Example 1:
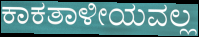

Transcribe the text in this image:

ಕಾಕತಾಳೀಯವಲ್ಲ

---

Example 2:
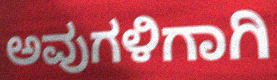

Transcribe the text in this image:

ಅವುಗಳಿಗಾಗಿ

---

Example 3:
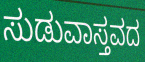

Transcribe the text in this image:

ಸುಡುವಾಸ್ತವದ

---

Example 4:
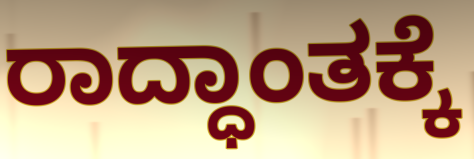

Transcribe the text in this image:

ರಾದ್ಧಾಂತಕ್ಕೆ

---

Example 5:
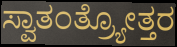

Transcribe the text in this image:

ಸ್ವಾತಂತ್ರ್ಯೋತ್ತರ